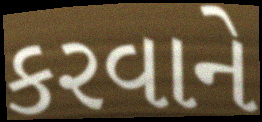
કરવાને